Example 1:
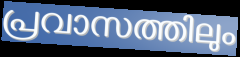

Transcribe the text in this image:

പ്രവാസത്തിലും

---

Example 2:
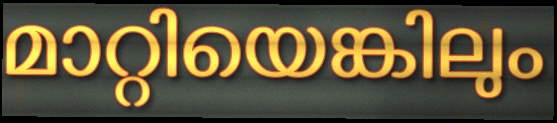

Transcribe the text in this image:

മാറ്റിയെങ്കിലും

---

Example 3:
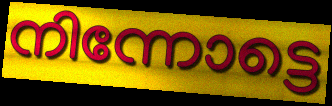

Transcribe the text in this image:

നിന്നോട്ടെ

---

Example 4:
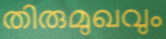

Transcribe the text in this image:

തിരുമുഖവും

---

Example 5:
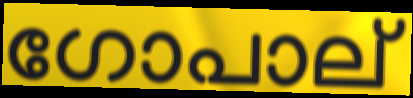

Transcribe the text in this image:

ഗോപാല്